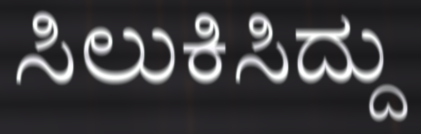
ಸಿಲುಕಿಸಿದ್ದು